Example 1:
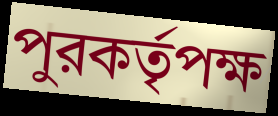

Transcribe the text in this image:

পুরকর্তৃপক্ষ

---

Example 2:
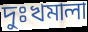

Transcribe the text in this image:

দুঃখমালা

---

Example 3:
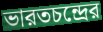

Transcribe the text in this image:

ভারতচন্দ্রের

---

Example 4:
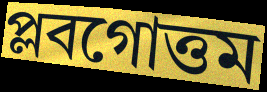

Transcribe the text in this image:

প্লবগোত্তম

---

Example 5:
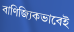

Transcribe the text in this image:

বাণিজ্যিকভাবেই